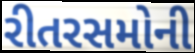
રીતરસમોની